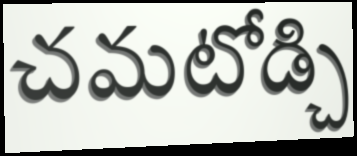
చమటోడ్చి